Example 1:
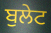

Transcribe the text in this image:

ਬੁਲੇਟ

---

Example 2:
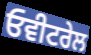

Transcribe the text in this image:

ਓਵੀਟਰੇਲ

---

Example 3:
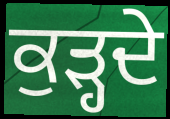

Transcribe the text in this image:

ਕੁੜ੍ਹਦੇ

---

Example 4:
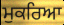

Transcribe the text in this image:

ਮੁਕਰਿਆ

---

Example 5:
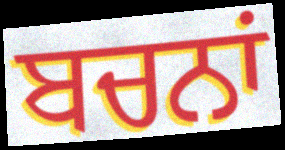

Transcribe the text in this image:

ਬਚਨਾਂ